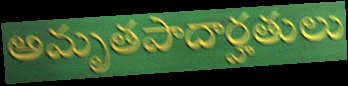
అమృతపాదార్హతులు